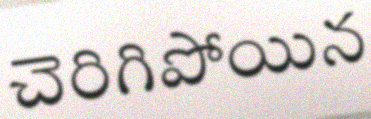
చెరిగిపోయిన